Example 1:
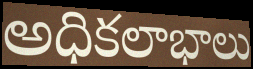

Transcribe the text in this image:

అధికలాభాలు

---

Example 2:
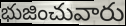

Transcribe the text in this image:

భుజించువారు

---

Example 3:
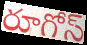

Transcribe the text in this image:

రూగోస్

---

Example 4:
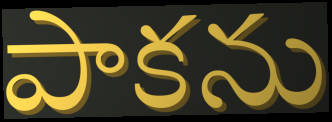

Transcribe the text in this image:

పాకను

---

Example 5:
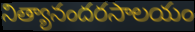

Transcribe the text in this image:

నిత్యానందరసాలయం